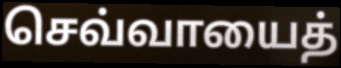
செவ்வாயைத்